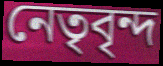
নেতৃবৃন্দ